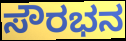
ಸೌರಭನ